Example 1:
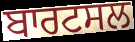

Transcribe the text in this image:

ਬਾਰਟਸਲ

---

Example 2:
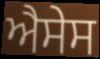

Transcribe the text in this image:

ਐਸੇਸ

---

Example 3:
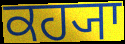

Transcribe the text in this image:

ਕਹ੍ਯਾ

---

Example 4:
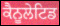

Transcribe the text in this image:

ਕੈਨੂਲੇਟਿਡ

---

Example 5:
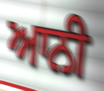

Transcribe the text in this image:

ਆਨੀ